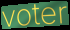
voter